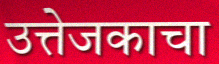
उत्तेजकाचा